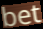
bet